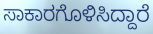
ಸಾಕಾರಗೊಳಿಸಿದ್ದಾರೆ